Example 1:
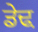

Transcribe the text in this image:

ਡੇਢ਼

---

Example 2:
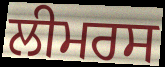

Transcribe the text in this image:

ਲੀਮਰਸ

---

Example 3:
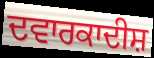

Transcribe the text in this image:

ਦਵਾਰਕਾਦੀਸ਼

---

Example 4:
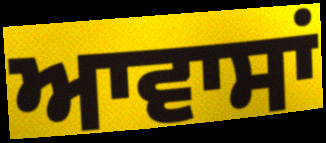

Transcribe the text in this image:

ਆਵਾਸਾਂ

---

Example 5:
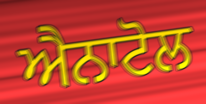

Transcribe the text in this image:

ਐਨਾਟੋਲ